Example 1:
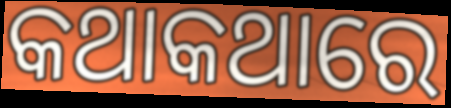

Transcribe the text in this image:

କଥାକଥାରେ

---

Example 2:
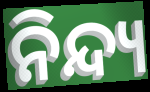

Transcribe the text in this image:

ନିନ୍ଦ୍ୟ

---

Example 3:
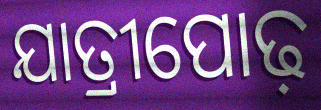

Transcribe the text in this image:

ଯାତ୍ରୀପୋଢ଼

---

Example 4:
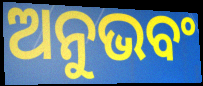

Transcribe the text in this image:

ଅନୁଭବଂ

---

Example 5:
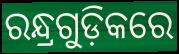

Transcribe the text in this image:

ରନ୍ଧ୍ରଗୁଡ଼ିକରେ